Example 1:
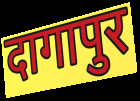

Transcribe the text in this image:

दागापुर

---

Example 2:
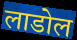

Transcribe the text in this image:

लाडोल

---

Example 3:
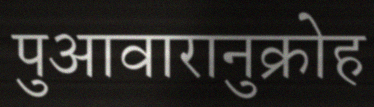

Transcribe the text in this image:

पुआवारानुक्रोह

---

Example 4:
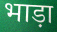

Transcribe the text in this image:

भाड़ा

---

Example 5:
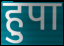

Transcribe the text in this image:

हुपा